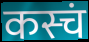
कस्चं